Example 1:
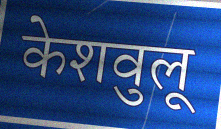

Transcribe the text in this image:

केशवुलू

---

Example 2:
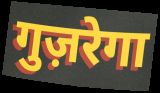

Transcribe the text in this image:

गुज़रेगा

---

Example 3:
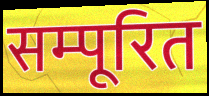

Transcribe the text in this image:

सम्पूरित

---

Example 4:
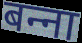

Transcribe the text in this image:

बन्ना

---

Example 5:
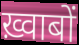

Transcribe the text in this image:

ख़्वाबों